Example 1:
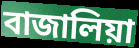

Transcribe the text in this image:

বাজালিয়া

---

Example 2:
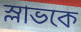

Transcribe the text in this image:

স্লাভকে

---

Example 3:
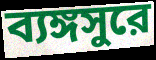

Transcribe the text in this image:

ব্যঙ্গসুরে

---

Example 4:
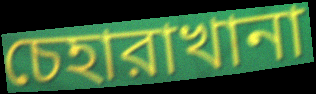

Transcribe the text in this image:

চেহারাখানা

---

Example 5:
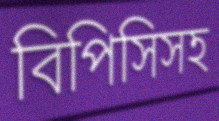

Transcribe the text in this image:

বিপিসিসহ